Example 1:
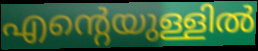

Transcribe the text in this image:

എന്റെയുള്ളിൽ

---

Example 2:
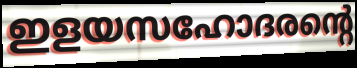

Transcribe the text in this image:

ഇളയസഹോദരന്റെ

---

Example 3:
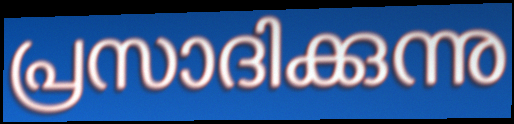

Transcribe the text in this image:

പ്രസാദിക്കുന്നു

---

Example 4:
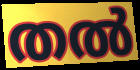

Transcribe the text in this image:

തൽ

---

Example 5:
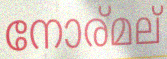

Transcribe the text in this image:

നോര്മല്